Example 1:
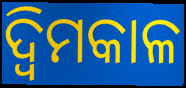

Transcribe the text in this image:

ଦ୍ବିମକାଳ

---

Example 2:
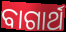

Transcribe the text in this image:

ବାଗାର୍ଥ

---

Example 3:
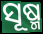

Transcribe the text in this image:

ସୂଷ୍ମ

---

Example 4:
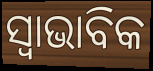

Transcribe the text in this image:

ସ୍ୱାଭାବିକ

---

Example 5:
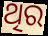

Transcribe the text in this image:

ଥିର